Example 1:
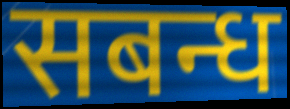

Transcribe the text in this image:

सबन्ध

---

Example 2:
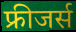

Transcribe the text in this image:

फ्रीजर्स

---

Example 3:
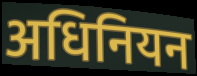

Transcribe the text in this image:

अधिनियन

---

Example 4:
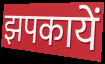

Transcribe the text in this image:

झपकायें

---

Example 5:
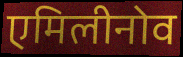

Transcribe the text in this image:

एमिलीनोव